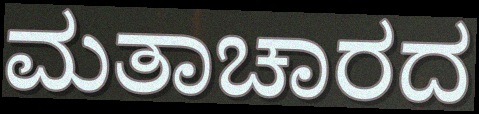
ಮತಾಚಾರದ